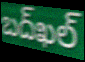
బద్‌ఖల్